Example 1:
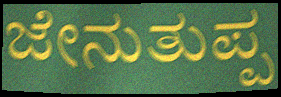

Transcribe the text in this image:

ಜೇನುತುಪ್ಪ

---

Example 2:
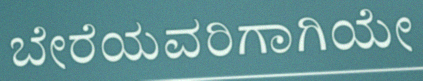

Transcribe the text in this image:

ಬೇರೆಯವರಿಗಾಗಿಯೇ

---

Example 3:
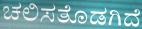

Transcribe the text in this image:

ಚಲಿಸತೊಡಗಿದೆ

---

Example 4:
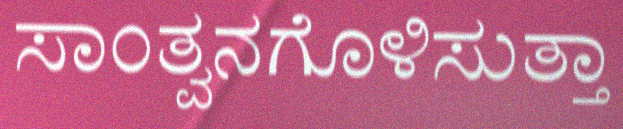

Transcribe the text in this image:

ಸಾಂತ್ವನಗೊಳಿಸುತ್ತಾ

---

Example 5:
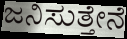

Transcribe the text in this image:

ಜನಿಸುತ್ತೇನೆ